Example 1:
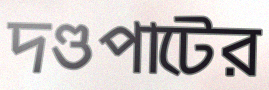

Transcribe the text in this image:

দণ্ডপাটের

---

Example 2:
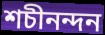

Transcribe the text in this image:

শচীনন্দন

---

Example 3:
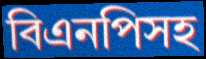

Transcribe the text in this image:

বিএনপিসহ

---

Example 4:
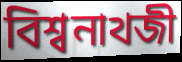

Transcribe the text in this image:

বিশ্বনাথজী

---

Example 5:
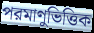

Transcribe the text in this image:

পরমাণুভিত্তিক